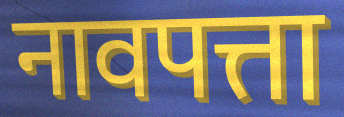
नावपत्ता